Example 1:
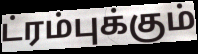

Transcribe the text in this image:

ட்ரம்புக்கும்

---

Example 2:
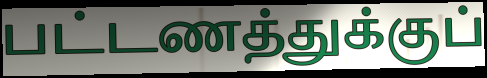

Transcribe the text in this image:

பட்டணத்துக்குப்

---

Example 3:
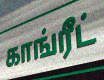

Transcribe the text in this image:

காங்ரீட்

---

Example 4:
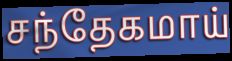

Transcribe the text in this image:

சந்தேகமாய்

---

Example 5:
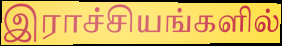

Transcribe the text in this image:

இராச்சியங்களில்